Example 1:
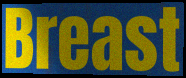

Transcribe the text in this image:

Breast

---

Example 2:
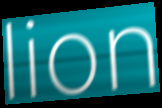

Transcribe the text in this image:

lion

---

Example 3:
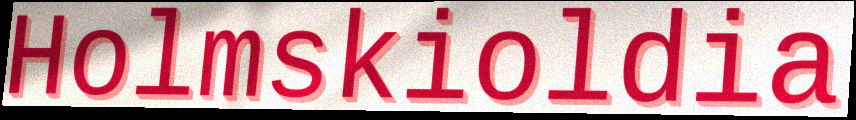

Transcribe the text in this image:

Holmskioldia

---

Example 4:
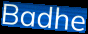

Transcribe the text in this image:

Badhe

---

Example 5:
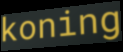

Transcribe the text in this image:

koning